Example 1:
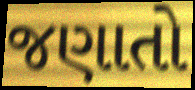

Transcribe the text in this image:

જણાતો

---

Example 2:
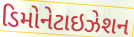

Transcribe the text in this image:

ડિમોનેટાઇઝેશન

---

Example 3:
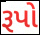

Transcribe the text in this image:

રૂપો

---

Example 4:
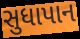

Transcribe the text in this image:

સુધાપાન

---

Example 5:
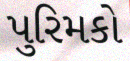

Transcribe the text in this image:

પુરિમકો